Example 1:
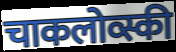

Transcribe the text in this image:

चाकलोव्स्की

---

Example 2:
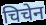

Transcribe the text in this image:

चिचेन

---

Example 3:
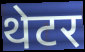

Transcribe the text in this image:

थेटर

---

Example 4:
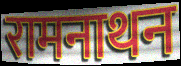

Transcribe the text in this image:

रामनाथन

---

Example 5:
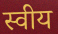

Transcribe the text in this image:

स्वीय